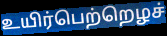
உயிர்பெற்றெழச்